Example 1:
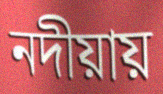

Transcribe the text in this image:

নদীয়ায়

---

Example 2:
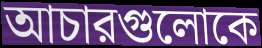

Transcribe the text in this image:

আচারগুলোকে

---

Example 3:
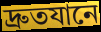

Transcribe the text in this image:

দ্রুতযানে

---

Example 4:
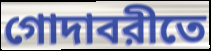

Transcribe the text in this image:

গোদাবরীতে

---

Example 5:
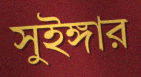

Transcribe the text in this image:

সুইঙ্গার